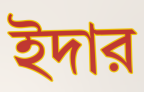
ইদার